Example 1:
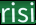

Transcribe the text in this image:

risi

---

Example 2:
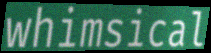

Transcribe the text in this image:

whimsical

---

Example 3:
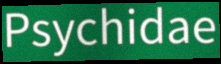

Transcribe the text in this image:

Psychidae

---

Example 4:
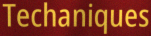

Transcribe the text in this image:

Techaniques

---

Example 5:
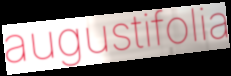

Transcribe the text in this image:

augustifolia